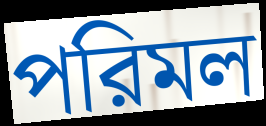
পরিমল